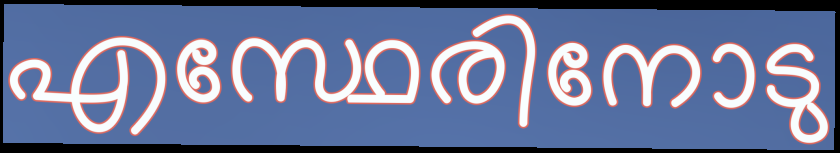
എസ്ഥേരിനോടു